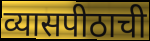
व्यासपीठाची